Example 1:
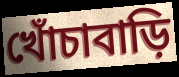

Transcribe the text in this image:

খোঁচাবাড়ি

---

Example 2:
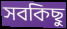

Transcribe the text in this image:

সবকিছু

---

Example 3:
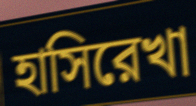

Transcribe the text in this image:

হাসিরেখা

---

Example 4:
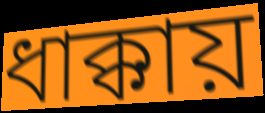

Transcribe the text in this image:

ধাক্কায়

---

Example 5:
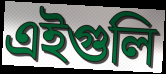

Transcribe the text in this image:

এইগুলি